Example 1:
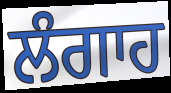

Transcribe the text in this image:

ਲੰਗਾਹ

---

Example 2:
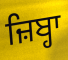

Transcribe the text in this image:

ਜ਼ਿਬ੍ਹਾ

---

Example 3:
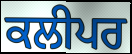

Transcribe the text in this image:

ਕਲੀਪਰ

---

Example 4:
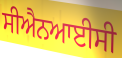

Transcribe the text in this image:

ਸੀਐਨਆਈਸੀ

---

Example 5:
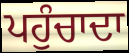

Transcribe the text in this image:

ਪਹੁੰਚਾਦਾ